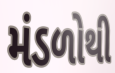
મંડળોથી